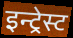
इन्ट्रेस्ट